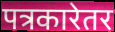
पत्रकारेतर